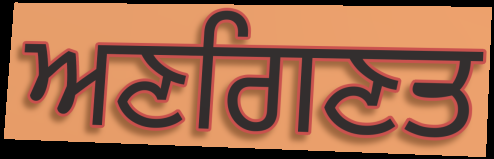
ਅਣਗਿਣਤ